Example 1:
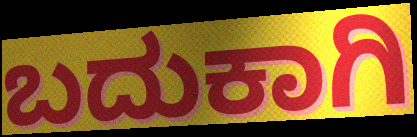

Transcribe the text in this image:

ಬದುಕಾಗಿ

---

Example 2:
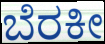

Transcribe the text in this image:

ಬೆರಕೀ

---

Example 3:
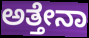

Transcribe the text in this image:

ಅತ್ತೇನಾ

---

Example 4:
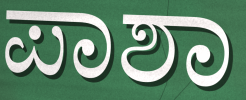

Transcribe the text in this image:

ಪಾಶಾ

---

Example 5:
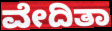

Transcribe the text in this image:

ವೇದಿತಾ